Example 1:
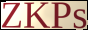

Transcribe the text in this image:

ZKPs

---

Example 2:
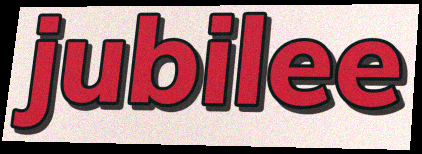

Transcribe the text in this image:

jubilee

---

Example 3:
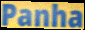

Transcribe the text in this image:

Panha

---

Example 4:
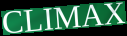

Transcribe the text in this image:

CLIMAX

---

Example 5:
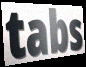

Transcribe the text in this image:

tabs